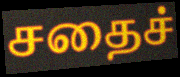
சதைச்